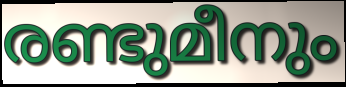
രണ്ടുമീനും